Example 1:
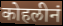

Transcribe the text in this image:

कोहलीनं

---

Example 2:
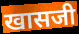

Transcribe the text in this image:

खासजी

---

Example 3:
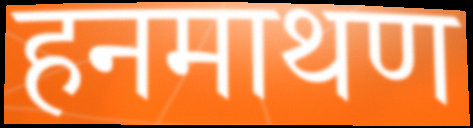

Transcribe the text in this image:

हनमाथण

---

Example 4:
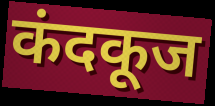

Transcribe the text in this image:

कंदकूज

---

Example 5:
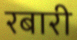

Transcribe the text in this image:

रबारी